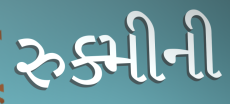
રુક્મીની